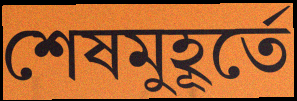
শেষমুহূর্তে